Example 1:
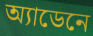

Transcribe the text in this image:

অ্যাডেনে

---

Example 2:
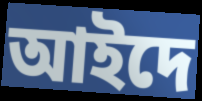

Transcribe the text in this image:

আইদে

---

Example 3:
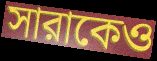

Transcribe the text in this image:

সারাকেও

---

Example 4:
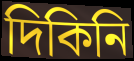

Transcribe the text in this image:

দিকিনি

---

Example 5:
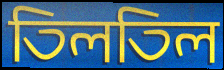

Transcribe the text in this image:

তিলতিল